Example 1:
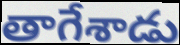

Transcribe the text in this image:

తాగేశాడు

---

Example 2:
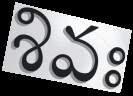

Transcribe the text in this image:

శివః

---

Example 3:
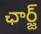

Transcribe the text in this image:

ఛార్జ్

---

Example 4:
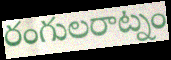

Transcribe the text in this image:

రంగులరాట్నం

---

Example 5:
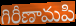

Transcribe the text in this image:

గిరీణామపి